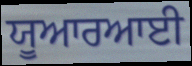
ਯੂਆਰਆਈ